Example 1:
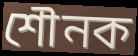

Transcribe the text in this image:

শৌনক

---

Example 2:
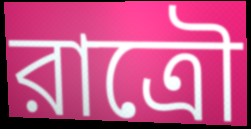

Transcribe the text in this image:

রাত্রৌ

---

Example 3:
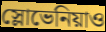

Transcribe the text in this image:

স্লোভেনিয়াও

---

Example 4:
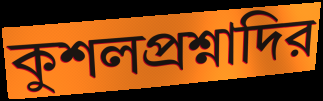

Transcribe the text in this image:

কুশলপ্রশ্নাদির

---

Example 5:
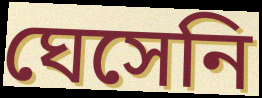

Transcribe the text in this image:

ঘেসেনি